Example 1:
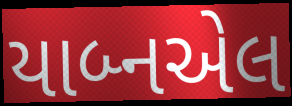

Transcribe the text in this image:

યાબ્નએલ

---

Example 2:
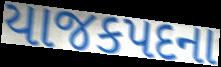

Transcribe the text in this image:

યાજકપદના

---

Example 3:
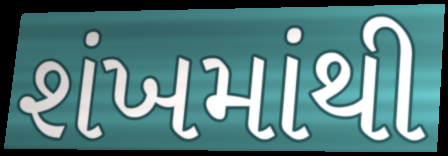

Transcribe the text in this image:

શંખમાંથી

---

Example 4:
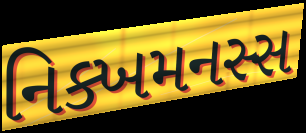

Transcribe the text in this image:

નિક્ખમનસ્સ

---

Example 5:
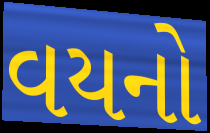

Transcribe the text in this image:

વયનો